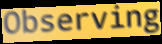
Observing